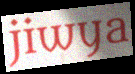
jiwya